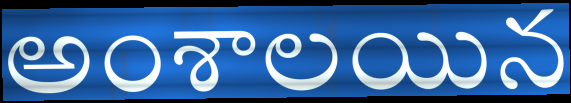
అంశాలయిన